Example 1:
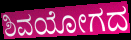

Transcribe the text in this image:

ಶಿವಯೋಗದ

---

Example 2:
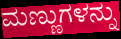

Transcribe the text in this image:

ಮಣ್ಣುಗಳನ್ನು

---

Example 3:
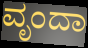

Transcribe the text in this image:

ವೃಂದಾ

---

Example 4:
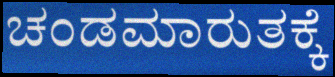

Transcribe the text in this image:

ಚಂಡಮಾರುತಕ್ಕೆ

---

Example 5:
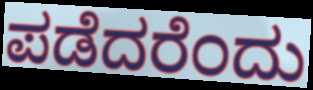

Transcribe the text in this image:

ಪಡೆದರೆಂದು